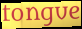
tongue